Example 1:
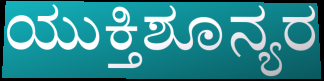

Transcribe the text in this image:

ಯುಕ್ತಿಶೂನ್ಯರ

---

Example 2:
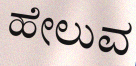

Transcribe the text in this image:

ಹೇಲುವ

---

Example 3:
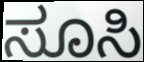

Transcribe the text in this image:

ಸೂಸಿ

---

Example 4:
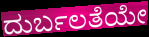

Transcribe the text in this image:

ದುರ್ಬಲತೆಯೇ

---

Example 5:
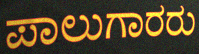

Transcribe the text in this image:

ಪಾಲುಗಾರರು